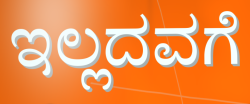
ಇಲ್ಲದವಗೆ